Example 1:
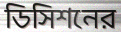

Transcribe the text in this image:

ডিসিশনের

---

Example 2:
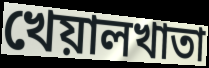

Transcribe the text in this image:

খেয়ালখাতা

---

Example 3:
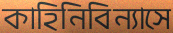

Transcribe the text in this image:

কাহিনিবিন্যাসে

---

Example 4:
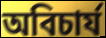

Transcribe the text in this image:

অবিচার্য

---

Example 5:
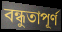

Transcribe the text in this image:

বন্ধুতাপূর্ণ